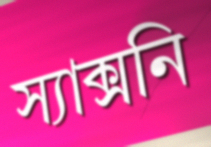
স্যাক্সনি